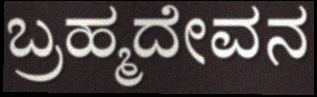
ಬ್ರಹ್ಮದೇವನ